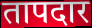
तापदार